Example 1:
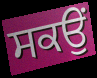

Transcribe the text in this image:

ਸਕਉਂ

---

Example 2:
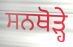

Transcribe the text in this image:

ਸਨਥੋੜ੍ਹੇ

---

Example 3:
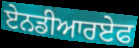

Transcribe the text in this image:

ਏਨਡੀਆਰਏਫ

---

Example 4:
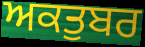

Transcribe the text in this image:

ਅਕਤੁਬਰ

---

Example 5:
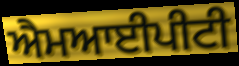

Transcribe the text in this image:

ਐਮਆਈਪੀਟੀ